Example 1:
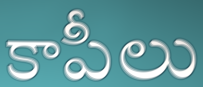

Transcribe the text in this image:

కాపీలు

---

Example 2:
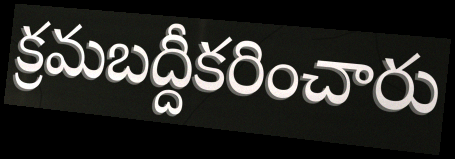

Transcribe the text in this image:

క్రమబద్దీకరించారు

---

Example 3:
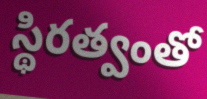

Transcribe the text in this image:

స్థిరత్వంతో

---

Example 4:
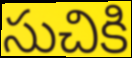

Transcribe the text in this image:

సుచికి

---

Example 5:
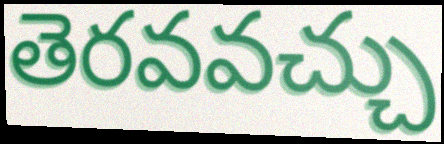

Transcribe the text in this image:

తెరవవచ్చు